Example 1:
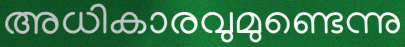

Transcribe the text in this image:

അധികാരവുമുണ്ടെന്നു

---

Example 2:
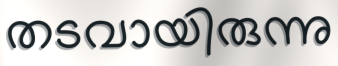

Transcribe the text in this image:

തടവായിരുന്നു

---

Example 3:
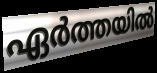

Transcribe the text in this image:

ഏർത്തയിൽ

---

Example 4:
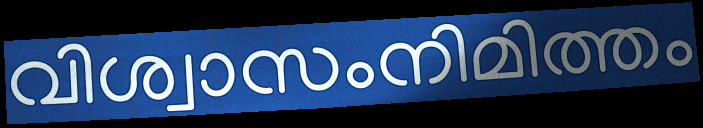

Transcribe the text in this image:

വിശ്വാസംനിമിത്തം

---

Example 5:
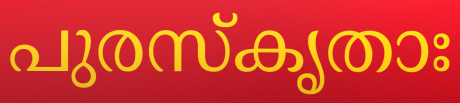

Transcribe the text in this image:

പുരസ്കൃതാഃ